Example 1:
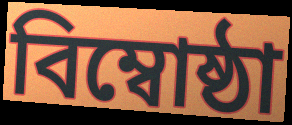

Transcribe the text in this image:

বিম্বোষ্ঠা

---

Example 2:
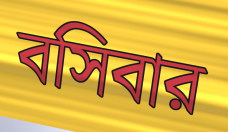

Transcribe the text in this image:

বসিবার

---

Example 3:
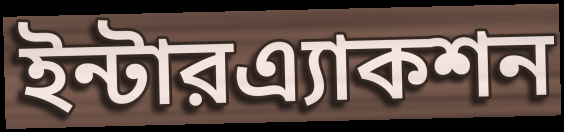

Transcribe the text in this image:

ইন্টারএ্যাকশন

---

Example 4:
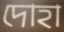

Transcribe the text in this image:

দোহা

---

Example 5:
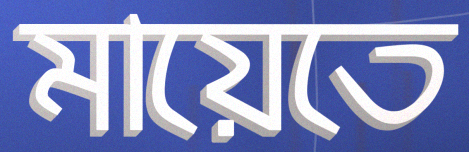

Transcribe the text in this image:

মায়েতে